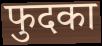
फुदका